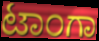
ಟಾಂಗಾ